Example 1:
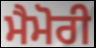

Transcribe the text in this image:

ਮੈਮੋਰੀ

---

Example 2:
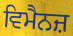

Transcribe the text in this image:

ਵਿਮੈਨਜ਼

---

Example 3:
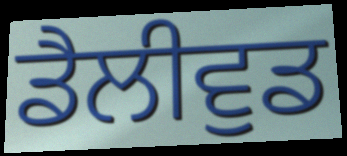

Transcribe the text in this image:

ਡੈਲੀਵੁਡ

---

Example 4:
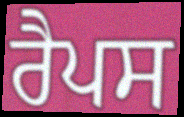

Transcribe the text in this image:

ਰੈਪਸ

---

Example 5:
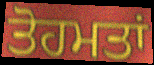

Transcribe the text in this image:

ਤੋਹਮਤਾਂ